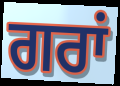
ਗਰਾਂ